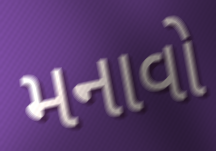
મનાવો